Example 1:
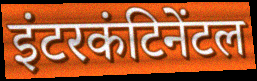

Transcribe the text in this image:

इंटरकंटिनेंटल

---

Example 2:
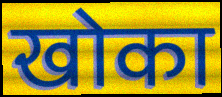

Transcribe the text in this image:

खोका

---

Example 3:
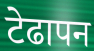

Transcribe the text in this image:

टेढापन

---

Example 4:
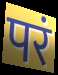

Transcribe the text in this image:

परं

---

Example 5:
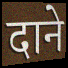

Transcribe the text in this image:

दाने